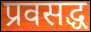
प्रवसद्ध